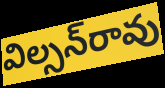
విల్సన్‌రావు